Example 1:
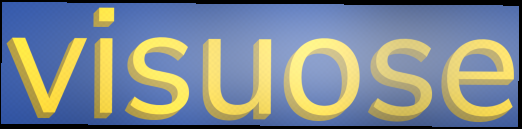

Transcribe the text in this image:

visuose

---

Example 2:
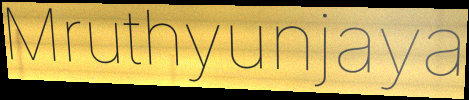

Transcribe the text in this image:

Mruthyunjaya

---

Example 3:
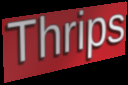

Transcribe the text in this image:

Thrips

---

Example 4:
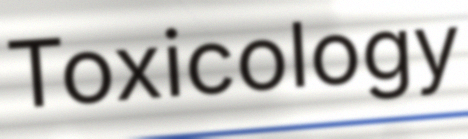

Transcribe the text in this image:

Toxicology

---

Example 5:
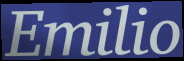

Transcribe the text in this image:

Emilio